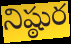
నిష్ఠుర